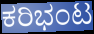
ಕರಿಭಂಟ